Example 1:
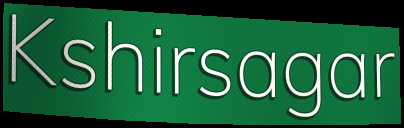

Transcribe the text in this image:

Kshirsagar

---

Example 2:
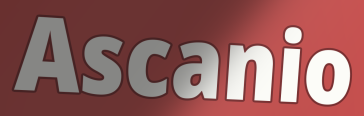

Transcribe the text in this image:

Ascanio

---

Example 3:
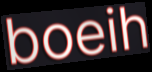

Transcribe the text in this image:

boeih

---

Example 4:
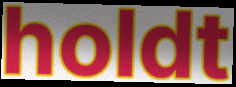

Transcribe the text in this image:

holdt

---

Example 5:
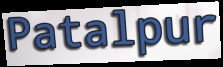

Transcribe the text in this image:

Patalpur